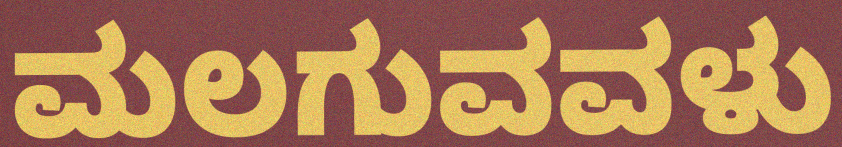
ಮಲಗುವವಳು